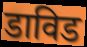
डाविड